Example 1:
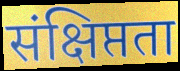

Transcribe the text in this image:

संक्षिप्तता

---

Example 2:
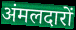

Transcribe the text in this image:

अंमलदारों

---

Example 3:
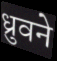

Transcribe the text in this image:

ध्रुवने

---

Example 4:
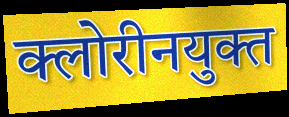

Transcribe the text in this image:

क्लोरीनयुक्त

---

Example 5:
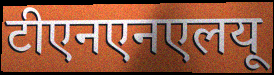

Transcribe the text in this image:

टीएनएनएलयू